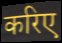
करिए